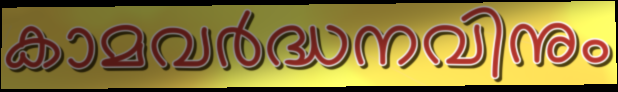
കാമവർദ്ധനവിനും